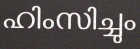
ഹിംസിച്ചും